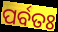
ପର୍ବତଃ